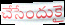
చేసేందుకై